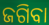
ଜଗିବା